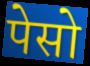
पेसो